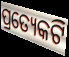
ପ୍ରତ୍ୟେକଟି